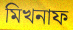
মিখনাফ